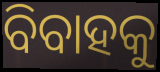
ବିବାହକୁ